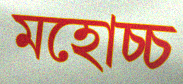
মহোচ্চ